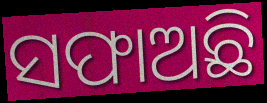
ସଫାଅଛି